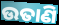
ଉତାଣି